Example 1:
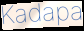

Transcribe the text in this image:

Kadapa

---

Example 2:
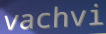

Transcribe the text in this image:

vachvi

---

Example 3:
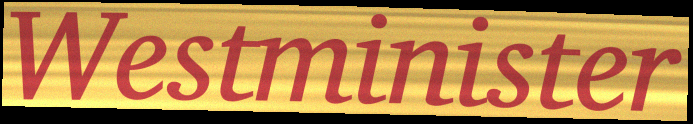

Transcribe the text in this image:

Westminister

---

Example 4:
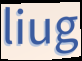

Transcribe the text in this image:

liug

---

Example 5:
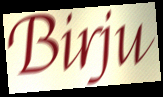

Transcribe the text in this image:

Birju